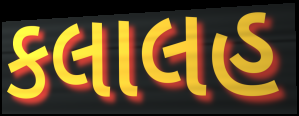
કલાલહ